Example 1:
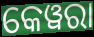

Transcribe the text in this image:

କେୱରା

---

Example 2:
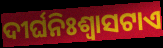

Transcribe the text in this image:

ଦୀର୍ଘନିଃଶ୍ୱାସଟାଏ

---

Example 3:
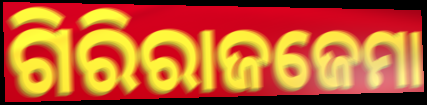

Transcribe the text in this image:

ଗିରିରାଜଜେମା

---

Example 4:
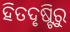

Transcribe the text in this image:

ହିତଦୃଷ୍ଟିରୁ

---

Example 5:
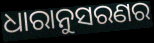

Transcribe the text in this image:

ଧାରାନୁସରଣର